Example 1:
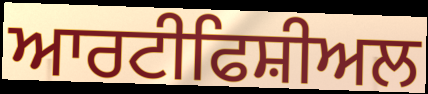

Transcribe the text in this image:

ਆਰਟੀਫਿਸ਼ੀਅਲ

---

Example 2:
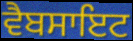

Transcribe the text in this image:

ਵੈਬਸਾਇਟ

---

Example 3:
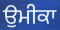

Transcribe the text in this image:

ਉਮੀਕਾ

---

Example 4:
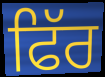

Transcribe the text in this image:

ਫਿੱਰ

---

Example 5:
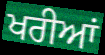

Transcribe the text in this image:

ਖਰੀਆਂ